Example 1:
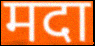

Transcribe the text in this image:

मदा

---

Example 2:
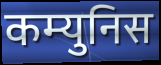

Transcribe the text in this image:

कम्युनिस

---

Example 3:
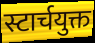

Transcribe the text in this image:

स्टार्चयुक्त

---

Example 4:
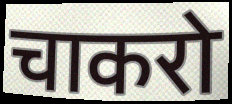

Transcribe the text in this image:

चाकरो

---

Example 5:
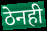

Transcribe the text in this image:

ठेनही